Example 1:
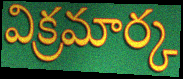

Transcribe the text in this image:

విక్రమార్క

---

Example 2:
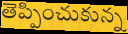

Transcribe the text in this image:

తెప్పించుకున్న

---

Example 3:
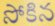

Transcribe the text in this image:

సోకిన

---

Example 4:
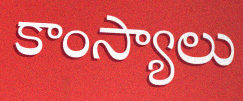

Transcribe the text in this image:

కాంస్యాలు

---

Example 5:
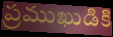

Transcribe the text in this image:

ప్రముఖుడికి